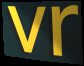
vr